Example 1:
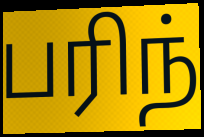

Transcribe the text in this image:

பரிந்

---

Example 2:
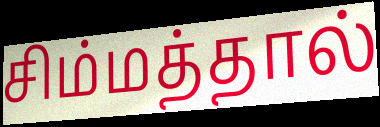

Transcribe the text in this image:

சிம்மத்தால்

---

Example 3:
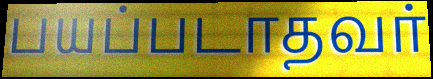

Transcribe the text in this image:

பயப்படாதவர்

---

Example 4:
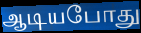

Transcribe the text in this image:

ஆடியபோது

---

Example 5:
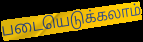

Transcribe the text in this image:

படையெடுக்கலாம்